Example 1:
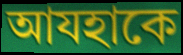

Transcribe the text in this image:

আযহাকে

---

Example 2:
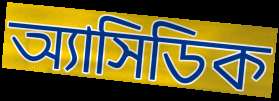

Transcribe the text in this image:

অ্যাসিডিক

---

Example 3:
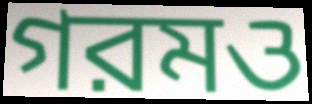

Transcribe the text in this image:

গরমও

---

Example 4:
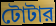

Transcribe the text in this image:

টোটার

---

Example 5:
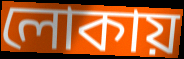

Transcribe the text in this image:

লোকায়